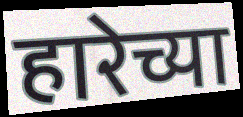
हारेच्या